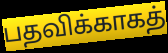
பதவிக்காகத்